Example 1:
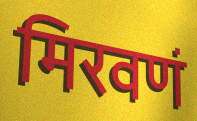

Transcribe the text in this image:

मिरवणं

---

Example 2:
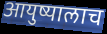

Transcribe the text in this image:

आयुष्यालाच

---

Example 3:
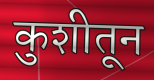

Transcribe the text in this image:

कुशीतून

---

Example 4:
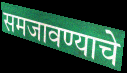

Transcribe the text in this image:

समजावण्याचे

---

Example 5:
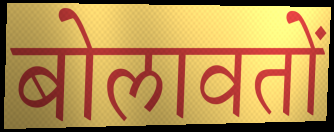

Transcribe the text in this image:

बोलावतों